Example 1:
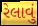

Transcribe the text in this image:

રેલાવું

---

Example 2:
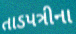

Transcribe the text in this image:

તાડપત્રીના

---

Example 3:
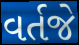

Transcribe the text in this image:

વર્તજે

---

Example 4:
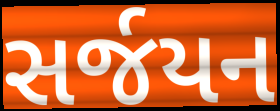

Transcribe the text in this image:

સર્જયન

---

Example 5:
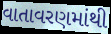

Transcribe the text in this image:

વાતાવરણમાંથી